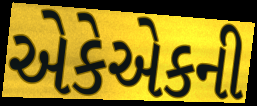
એકેએકની